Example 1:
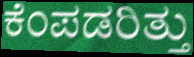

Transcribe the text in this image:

ಕೆಂಪಡರಿತ್ತು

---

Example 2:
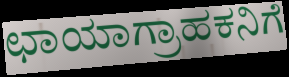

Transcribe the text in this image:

ಛಾಯಾಗ್ರಾಹಕನಿಗೆ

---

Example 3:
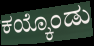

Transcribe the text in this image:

ಕಯ್ಕೊಂಡು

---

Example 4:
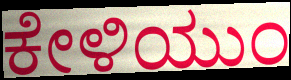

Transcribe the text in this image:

ಕೇಳಿಯುಂ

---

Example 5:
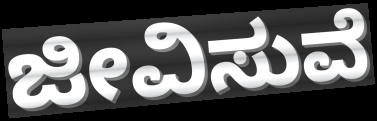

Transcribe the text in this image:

ಜೀವಿಸುವೆ